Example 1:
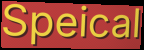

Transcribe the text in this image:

Speical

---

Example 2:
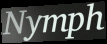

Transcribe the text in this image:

Nymph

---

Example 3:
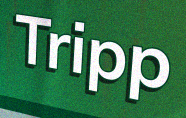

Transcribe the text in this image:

Tripp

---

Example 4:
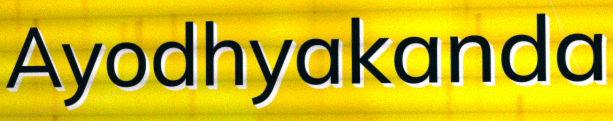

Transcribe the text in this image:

Ayodhyakanda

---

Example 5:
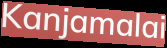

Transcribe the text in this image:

Kanjamalai